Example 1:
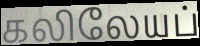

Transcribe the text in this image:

கலிலேயப்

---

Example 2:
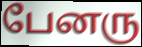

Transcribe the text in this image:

பேனரு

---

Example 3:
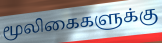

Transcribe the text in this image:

மூலிகைகளுக்கு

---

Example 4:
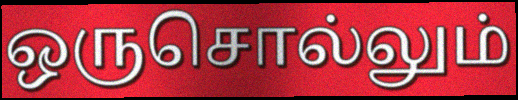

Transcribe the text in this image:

ஒருசொல்லும்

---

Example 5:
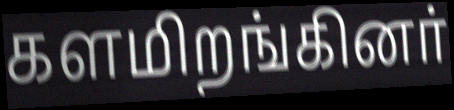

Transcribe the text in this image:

களமிறங்கினர்